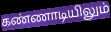
கண்ணாடியிலும்